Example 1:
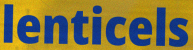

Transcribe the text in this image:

lenticels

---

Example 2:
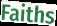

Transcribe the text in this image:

Faiths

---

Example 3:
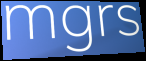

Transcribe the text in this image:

mgrs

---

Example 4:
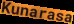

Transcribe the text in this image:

Kunarasa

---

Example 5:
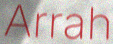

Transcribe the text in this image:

Arrah